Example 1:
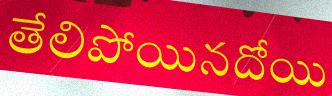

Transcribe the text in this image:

తేలిపోయినదోయి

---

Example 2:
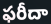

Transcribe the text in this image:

ఫరీదా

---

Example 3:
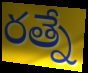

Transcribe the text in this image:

రత్నే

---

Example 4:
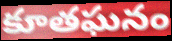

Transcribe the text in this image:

కూతఘనం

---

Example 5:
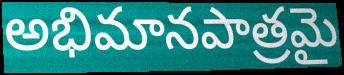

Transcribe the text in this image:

అభిమానపాత్రమై